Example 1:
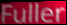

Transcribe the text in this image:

Fuller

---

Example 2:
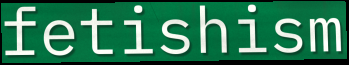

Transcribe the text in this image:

fetishism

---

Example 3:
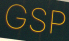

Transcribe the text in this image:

GSP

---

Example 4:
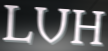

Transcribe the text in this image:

LUH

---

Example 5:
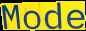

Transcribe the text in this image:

Mode